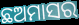
ଛଅମାସର